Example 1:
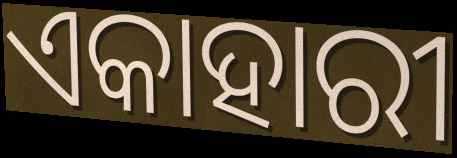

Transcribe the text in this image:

ଏକାହାରୀ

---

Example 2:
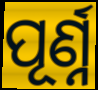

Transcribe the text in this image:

ପୂର୍ଣ୍ନ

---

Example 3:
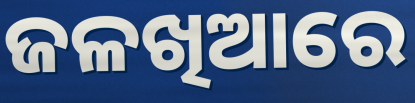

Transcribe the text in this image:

ଜଳଖିଆରେ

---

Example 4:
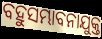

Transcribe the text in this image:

ବହୁସମ୍ଭାବନାଯୁକ୍ତ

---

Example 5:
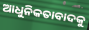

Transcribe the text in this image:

ଆଧୁନିକତାବାଦକୁ